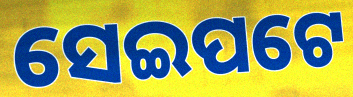
ସେଇପଟେ